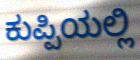
ಕುಪ್ಪಿಯಲ್ಲಿ